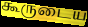
கூருடைய